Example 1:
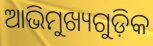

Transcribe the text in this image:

ଆଭିମୁଖ୍ୟଗୁଡ଼ିକ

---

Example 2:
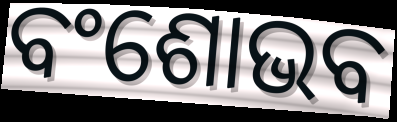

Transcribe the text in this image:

ବଂଶୋଭବ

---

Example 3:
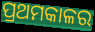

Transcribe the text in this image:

ପ୍ରଥମକାଳର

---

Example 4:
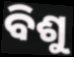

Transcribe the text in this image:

ବିଶୁ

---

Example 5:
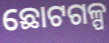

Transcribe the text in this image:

ଛୋଟଗଳ୍ପ